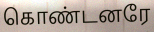
கொண்டனரே